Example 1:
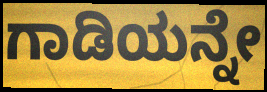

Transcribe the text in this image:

ಗಾಡಿಯನ್ನೇ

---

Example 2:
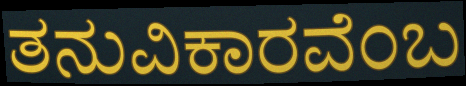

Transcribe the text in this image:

ತನುವಿಕಾರವೆಂಬ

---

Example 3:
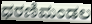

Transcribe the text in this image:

ಧರಣಿಮಂಡಲ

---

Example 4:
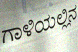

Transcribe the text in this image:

ಗಾಳಿಯಲ್ಲಿನ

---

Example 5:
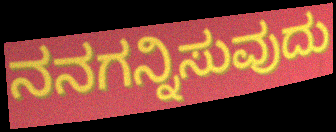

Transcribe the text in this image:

ನನಗನ್ನಿಸುವುದು